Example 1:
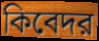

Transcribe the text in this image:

কিবেদর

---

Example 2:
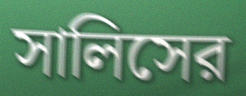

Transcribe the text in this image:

সালিসের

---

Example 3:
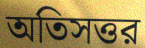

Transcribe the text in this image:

অতিসত্তর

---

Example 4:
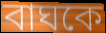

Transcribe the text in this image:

বাঘকে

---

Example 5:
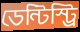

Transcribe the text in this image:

ডেন্টিস্ট্রি